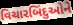
વિચારબિંદુઓને